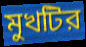
মুখটির